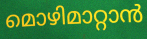
മൊഴിമാറ്റാൻ